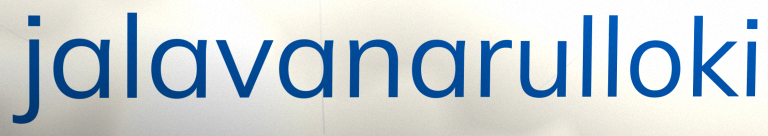
jalavanarulloki